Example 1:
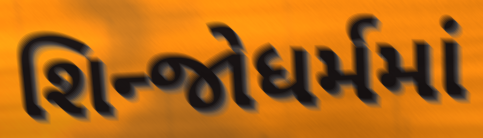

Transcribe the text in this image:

શિન્જોધર્મમાં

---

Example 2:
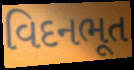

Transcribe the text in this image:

વિદનભૂત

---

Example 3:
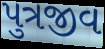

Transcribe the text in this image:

પુત્રજીવ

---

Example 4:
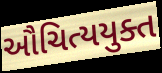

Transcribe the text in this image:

ઔચિત્યયુક્ત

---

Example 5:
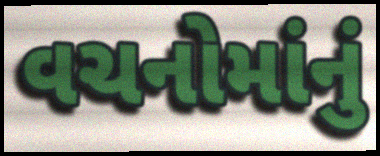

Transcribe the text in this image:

વચનોમાંનું